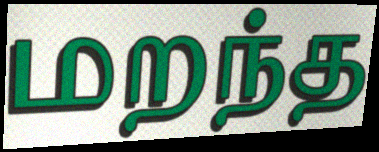
மறந்த